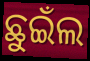
ଛୁଇଁଲ